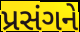
પ્રસંગને